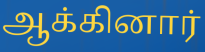
ஆக்கினார்